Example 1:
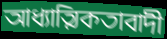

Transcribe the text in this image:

আধ্যাত্মিকতাবাদী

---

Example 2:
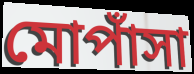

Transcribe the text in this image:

মোপাঁসা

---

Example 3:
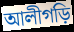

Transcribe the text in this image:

আলীগড়ি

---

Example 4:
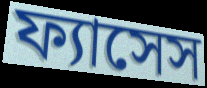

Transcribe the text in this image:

ফ্যাসেস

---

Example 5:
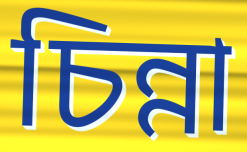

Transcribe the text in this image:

চিন্না